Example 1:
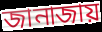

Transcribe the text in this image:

জানাজায়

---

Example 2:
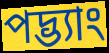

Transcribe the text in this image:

পদ্ভ্যাং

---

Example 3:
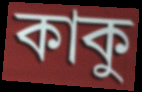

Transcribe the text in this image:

কাকু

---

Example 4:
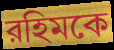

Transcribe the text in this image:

রহিমকে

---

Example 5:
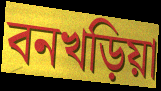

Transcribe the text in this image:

বনখড়িয়া